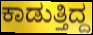
ಕಾಡುತ್ತಿದ್ದ